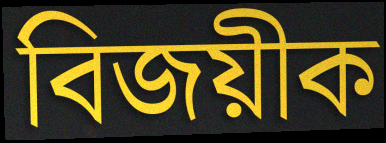
বিজয়ীক